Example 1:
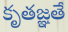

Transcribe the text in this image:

కృతజ్ఞతే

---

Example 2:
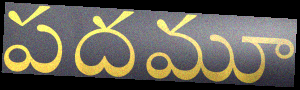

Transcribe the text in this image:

పదమూ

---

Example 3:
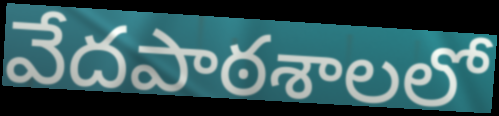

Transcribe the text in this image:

వేదపాఠశాలలో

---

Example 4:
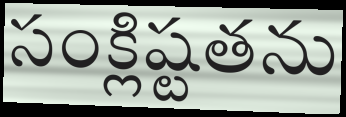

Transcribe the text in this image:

సంక్లిష్టతను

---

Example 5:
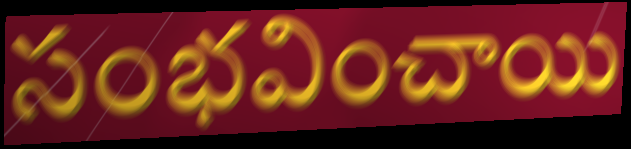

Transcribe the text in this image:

సంభవించాయి